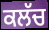
ਕਲੱਚ